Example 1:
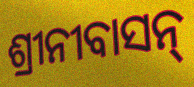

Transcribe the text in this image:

ଶ୍ରୀନୀବାସନ୍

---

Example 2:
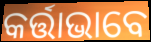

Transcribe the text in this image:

କର୍ତ୍ତାଭାବେ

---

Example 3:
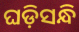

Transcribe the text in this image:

ଘଡ଼ିସନ୍ଧି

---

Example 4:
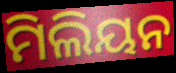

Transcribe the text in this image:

ମିଲିୟନ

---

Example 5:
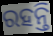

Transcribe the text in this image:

ରହନ୍ତି